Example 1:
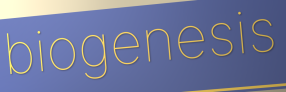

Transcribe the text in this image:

biogenesis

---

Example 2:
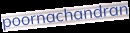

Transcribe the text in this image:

poornachandran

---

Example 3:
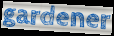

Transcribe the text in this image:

gardener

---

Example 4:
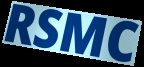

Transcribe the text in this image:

RSMC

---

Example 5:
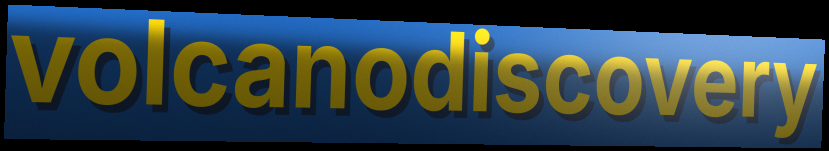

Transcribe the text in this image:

volcanodiscovery